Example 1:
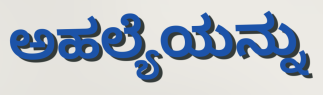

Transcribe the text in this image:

ಅಹಲ್ಯೆಯನ್ನು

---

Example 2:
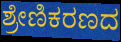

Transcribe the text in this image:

ಶ್ರೇಣಿಕರಣದ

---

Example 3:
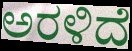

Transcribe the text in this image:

ಅರಳಿದೆ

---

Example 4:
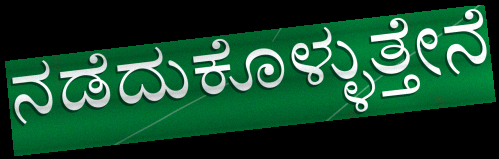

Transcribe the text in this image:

ನಡೆದುಕೊಳ್ಳುತ್ತೇನೆ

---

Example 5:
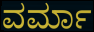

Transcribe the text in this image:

ವರ್ಮಾ